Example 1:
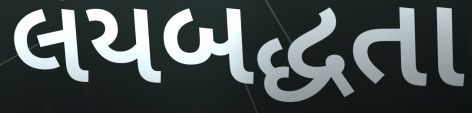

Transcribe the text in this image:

લયબદ્ધતા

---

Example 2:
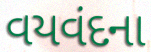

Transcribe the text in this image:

વયવંદના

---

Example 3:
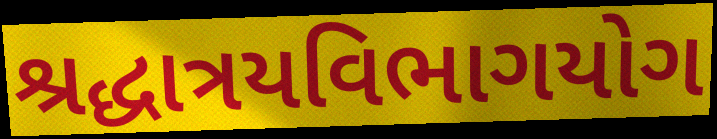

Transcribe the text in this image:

શ્રદ્ધાત્રયવિભાગયોગ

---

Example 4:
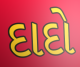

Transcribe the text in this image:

દાદો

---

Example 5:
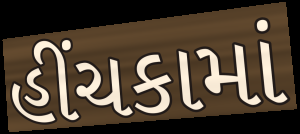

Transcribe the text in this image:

હીંચકામાં